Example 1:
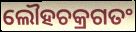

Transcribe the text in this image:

ଲୌହଚକ୍ରଗତଂ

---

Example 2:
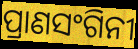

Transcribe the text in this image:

ପ୍ରାଣସଂଗିନୀ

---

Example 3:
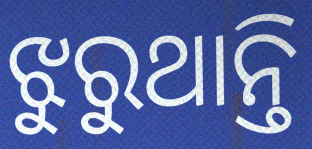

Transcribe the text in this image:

ଝୁରୁଥାନ୍ତି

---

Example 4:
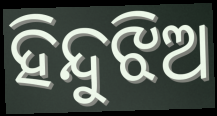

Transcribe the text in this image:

ହିନ୍ଦୁଝିଅ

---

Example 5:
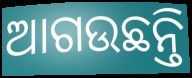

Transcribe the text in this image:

ଆଗଉଛନ୍ତି